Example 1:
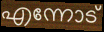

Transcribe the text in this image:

എന്നോട്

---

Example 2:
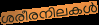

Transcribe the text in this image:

ശരീരനിലകൾ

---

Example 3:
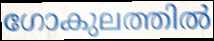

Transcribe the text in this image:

ഗോകുലത്തിൽ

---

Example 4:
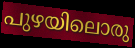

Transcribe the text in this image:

പുഴയിലൊരു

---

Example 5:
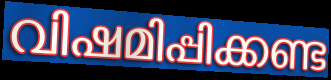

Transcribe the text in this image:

വിഷമിപ്പിക്കണ്ട